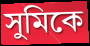
সুমিকে